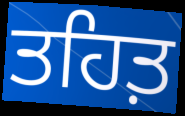
ਤਹਿਤ਼